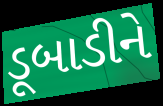
ડૂબાડીને